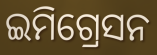
ଇମିଗ୍ରେସନ